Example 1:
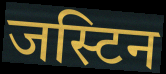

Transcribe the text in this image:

जस्‍टिन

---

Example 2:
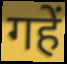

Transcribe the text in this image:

गहें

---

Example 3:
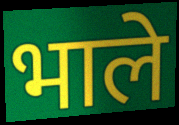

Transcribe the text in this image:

भाले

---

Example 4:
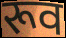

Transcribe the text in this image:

रूव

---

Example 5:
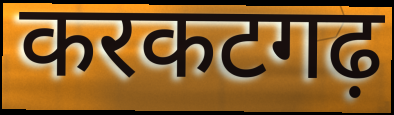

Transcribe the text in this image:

करकटगढ़